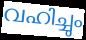
വഹിച്ചും